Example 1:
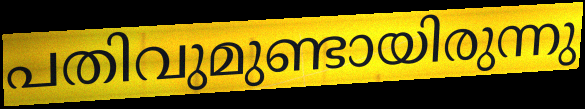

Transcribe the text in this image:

പതിവുമുണ്ടായിരുന്നു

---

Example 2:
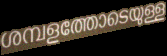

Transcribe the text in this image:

ശമ്പളത്തോടെയുള്ള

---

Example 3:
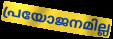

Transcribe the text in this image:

പ്രയോജനമില്ല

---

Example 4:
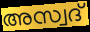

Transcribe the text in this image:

അസ്വദ്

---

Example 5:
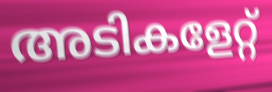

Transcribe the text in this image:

അടികളേറ്റ്